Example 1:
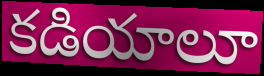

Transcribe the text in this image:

కడియాలూ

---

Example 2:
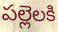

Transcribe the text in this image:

పల్లెలకి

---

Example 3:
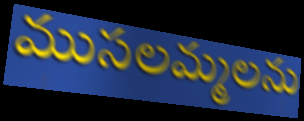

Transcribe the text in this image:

ముసలమ్మలను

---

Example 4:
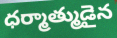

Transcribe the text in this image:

ధర్మాత్ముడైన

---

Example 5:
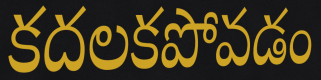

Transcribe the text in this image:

కదలకపోవడం